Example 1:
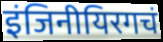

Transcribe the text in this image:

इंजिनीयिरगचं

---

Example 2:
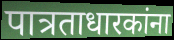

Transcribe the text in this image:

पात्रताधारकांना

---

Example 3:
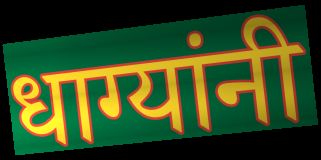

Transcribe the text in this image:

धाग्यांनी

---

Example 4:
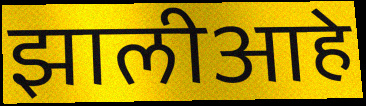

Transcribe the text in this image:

झालीआहे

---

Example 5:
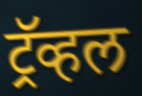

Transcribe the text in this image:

ट्रॅव्हल